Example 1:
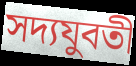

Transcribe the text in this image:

সদ্যযুবতী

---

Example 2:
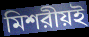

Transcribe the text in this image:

মিশরীয়ই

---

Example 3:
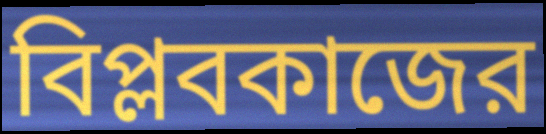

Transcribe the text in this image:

বিপ্লবকাজের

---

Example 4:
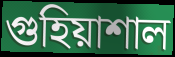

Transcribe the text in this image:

গুহিয়াশাল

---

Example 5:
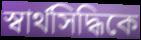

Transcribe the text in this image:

স্বার্থসিদ্ধিকে